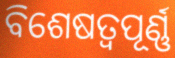
ବିଶେଷତ୍ୱପୂର୍ଣ୍ଣ